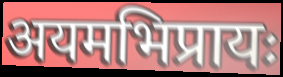
अयमभिप्रायः